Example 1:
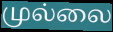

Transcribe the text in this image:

முல்லை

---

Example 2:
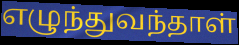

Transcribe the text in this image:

எழுந்துவந்தாள்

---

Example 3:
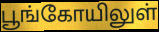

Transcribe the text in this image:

பூங்கோயிலுள்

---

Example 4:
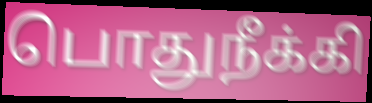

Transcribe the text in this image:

பொதுநீக்கி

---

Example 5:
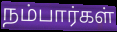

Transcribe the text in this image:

நம்பார்கள்